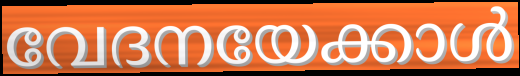
വേദനയേക്കാൾ